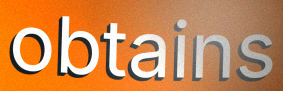
obtains